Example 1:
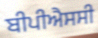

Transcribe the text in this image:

ਬੀਪੀਐਸਸੀ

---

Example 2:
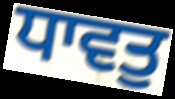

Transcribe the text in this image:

ਧਾਵਤੁ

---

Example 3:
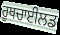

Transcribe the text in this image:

ਰੂਥਚਾਈਲਡ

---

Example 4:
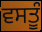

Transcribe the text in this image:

ਵਸਤੂੰ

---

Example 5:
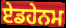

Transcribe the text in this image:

ਏਡਹੇਨਮ